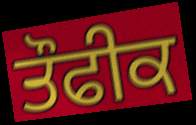
ਤੌਫੀਕ